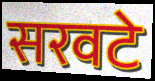
सरवटे